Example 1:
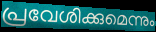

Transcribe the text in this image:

പ്രവേശിക്കുമെന്നും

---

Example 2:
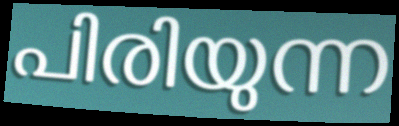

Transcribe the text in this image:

പിരിയുന്ന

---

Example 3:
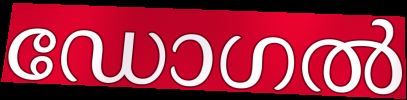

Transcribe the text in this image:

ഡോഗൽ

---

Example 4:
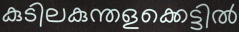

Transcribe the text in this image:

കുടിലകുന്തളക്കെട്ടിൽ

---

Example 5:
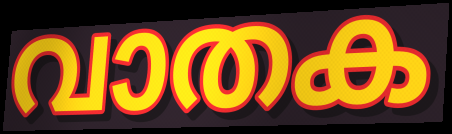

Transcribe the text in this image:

വാതക